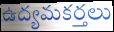
ఉద్యమకర్తలు